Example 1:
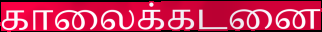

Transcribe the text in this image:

காலைக்கடனை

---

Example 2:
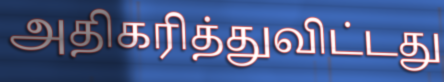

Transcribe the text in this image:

அதிகரித்துவிட்டது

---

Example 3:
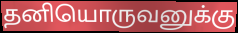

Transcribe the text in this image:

தனியொருவனுக்கு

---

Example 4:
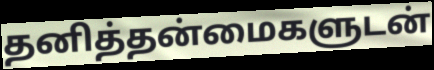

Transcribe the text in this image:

தனித்தன்மைகளுடன்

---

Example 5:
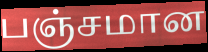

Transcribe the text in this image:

பஞ்சமான